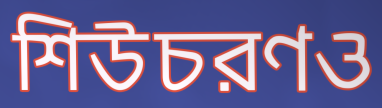
শিউচরণও